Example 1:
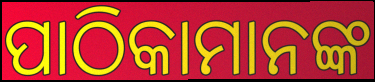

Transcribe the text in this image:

ପାଠିକାମାନଙ୍କ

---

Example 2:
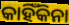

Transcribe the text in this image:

କାହିଁକିନା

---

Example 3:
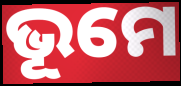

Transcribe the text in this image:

ଭୂମେ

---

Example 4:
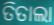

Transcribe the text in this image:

ତିତାଲା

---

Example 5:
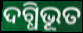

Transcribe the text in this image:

ଦଗ୍ଧିଭୂତ